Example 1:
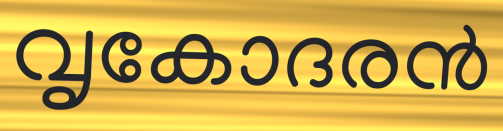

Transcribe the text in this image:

വൃകോദരൻ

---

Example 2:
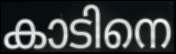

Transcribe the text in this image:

കാടിനെ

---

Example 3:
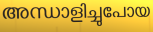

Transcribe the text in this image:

അന്ധാളിച്ചുപോയ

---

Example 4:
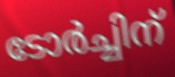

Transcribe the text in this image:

ടോർച്ചിന്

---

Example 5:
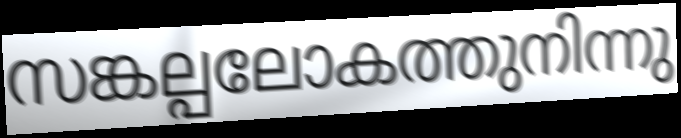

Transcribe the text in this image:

സങ്കല്പലോകത്തുനിന്നു